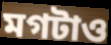
মগটাও